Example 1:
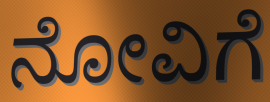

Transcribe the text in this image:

ನೋವಿಗೆ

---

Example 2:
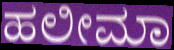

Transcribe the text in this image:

ಹಲೀಮಾ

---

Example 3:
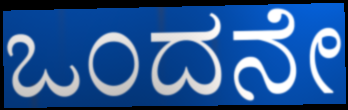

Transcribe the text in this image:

ಒಂದನೇ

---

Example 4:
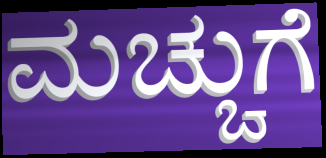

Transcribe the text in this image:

ಮಚ್ಚುಗೆ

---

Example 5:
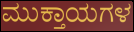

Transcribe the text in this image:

ಮುಕ್ತಾಯಗಳ